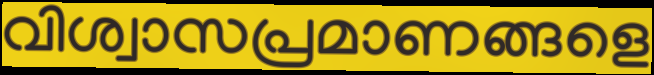
വിശ്വാസപ്രമാണങ്ങളെ